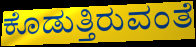
ಕೊಡುತ್ತಿರುವಂತೆ